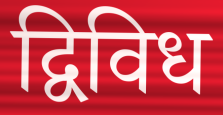
द्विविध